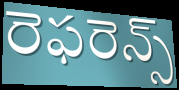
రెఫరెన్స్